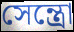
সেন্ত্রো